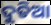
ଦୁତିଆ